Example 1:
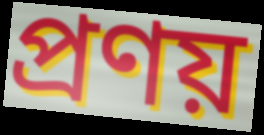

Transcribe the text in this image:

প্ৰণয়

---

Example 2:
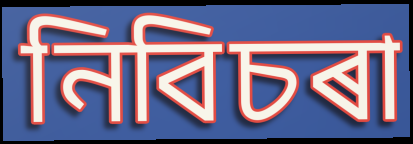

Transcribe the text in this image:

নিবিচৰা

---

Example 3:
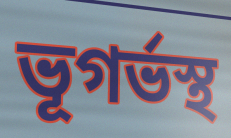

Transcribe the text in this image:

ভূগৰ্ভস্থ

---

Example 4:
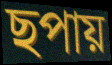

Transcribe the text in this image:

ছপায়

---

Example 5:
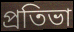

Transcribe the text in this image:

প্ৰতিভা